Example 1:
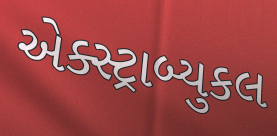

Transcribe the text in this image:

એક્સ્ટ્રાબ્યુકલ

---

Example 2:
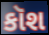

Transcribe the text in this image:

કૉશ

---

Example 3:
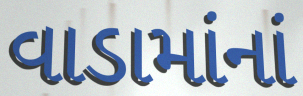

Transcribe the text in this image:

વાડામાંનાં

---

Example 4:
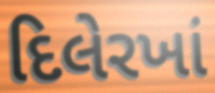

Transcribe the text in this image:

દિલેરખાં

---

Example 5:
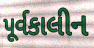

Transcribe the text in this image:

પૂર્વકાલીન